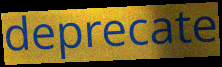
deprecate